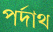
পর্দাথ